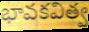
భావకవిత్వ